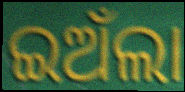
ଇଅଁଲା